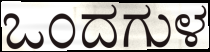
ಒಂದಗುಳ